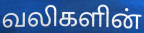
வலிகளின்